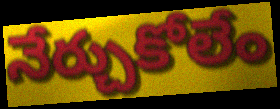
నేర్చుకోలేం